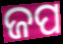
ଜପ